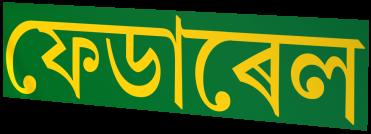
ফেডাৰেল